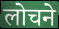
लोचने